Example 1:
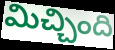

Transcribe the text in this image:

మిచ్చింది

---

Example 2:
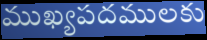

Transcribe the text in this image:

ముఖ్యపదములకు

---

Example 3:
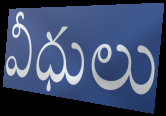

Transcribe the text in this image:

వీధులు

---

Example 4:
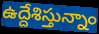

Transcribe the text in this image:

ఉద్దేశిస్తున్నాం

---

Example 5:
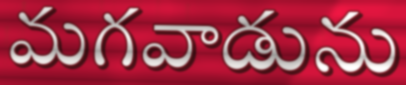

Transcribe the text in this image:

మగవాడును